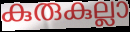
കുരുകുല്ലാ